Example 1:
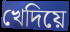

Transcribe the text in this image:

খেদিয়ে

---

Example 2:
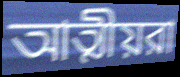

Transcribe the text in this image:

আত্মীয়রা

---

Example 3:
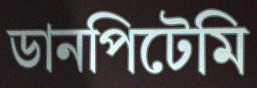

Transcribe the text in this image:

ডানপিটেমি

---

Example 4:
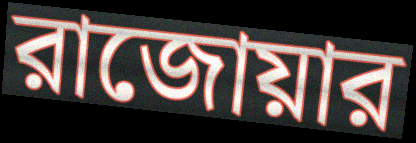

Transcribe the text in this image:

রাজোয়ার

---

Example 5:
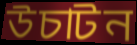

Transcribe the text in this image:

উচাটন